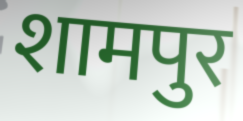
शामपुर